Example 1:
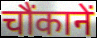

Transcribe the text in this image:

चौंकानें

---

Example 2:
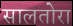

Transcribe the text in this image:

सालतोरा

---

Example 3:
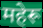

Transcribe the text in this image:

महेरू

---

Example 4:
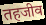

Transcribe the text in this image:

तहजीव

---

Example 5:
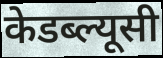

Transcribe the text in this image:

केडब्ल्यूसी